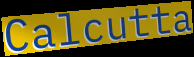
Calcutta